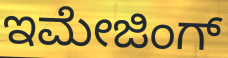
ಇಮೇಜಿಂಗ್